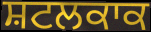
ਸ਼ਟਲਕਾਕ